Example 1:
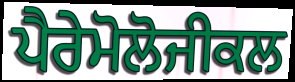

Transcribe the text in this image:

ਪੈਰੇਮੋਲੋਜੀਕਲ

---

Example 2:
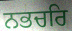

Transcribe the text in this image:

ਨਭਚਰਿ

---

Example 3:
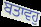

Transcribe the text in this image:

ਬਤਾਵਹੁ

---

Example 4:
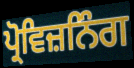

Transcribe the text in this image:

ਪ੍ਰੋਵਿਜ਼ਨਿੰਗ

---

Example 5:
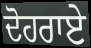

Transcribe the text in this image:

ਦੋਹਰਾਏ